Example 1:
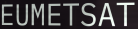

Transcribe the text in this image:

EUMETSAT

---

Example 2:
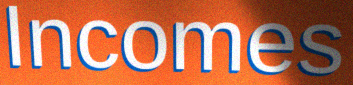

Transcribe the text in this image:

Incomes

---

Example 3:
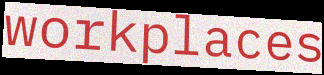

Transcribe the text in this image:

workplaces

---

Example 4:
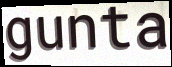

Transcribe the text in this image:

gunta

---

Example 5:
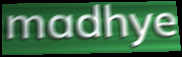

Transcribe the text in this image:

madhye